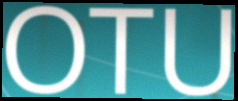
OTU